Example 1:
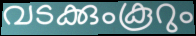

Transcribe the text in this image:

വടക്കുംകൂറും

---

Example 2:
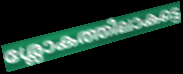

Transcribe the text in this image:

ശ്ലോകത്തിലാകട്ടെ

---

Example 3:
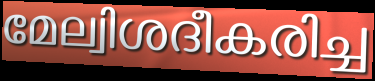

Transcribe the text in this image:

മേല്വിശദീകരിച്ച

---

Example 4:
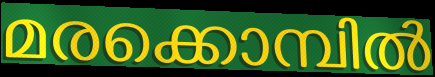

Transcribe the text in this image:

മരക്കൊമ്പിൽ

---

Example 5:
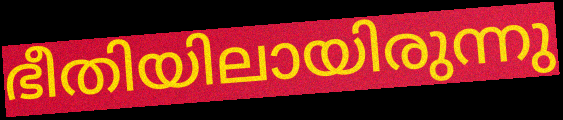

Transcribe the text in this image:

ഭീതിയിലായിരുന്നു